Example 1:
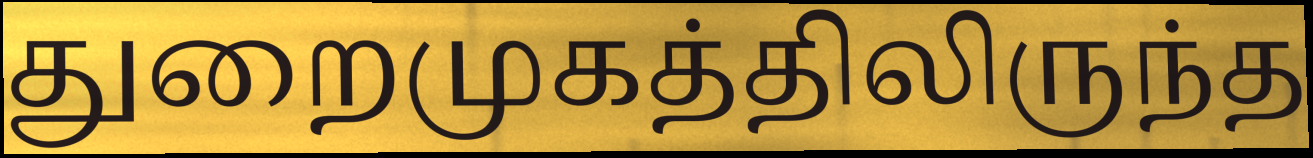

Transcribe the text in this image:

துறைமுகத்திலிருந்த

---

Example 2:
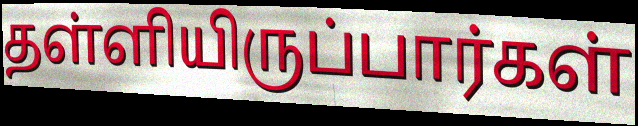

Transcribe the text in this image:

தள்ளியிருப்பார்கள்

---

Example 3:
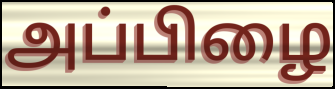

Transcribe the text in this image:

அப்பிழை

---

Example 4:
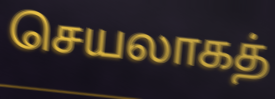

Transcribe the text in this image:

செயலாகத்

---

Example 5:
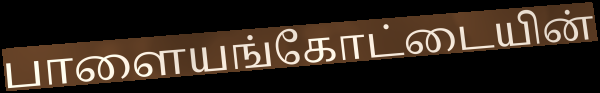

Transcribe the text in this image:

பாளையங்கோட்டையின்